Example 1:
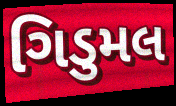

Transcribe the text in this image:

ગિડુમલ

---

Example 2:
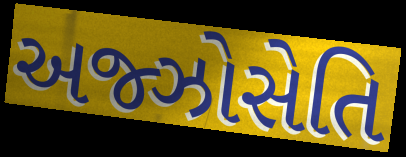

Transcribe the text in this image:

અજ્ઝોસેતિ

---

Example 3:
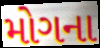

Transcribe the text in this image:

મોગના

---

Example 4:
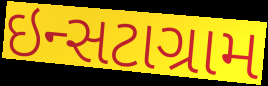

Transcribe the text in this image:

ઇન્સટાગ્રામ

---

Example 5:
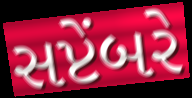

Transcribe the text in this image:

સપ્ટેંબરે